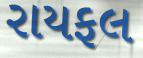
રાયફલ